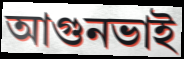
আগুনভাই